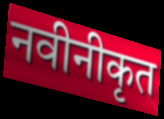
नवीनीकृत